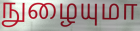
நுழையுமா